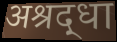
अश्रद्धा